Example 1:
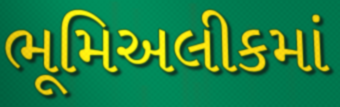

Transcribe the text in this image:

ભૂમિઅલીકમાં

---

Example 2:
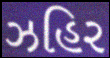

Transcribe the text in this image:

ઝહિર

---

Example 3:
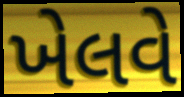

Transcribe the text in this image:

ખેલવે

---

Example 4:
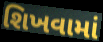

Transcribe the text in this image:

શિખવામાં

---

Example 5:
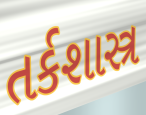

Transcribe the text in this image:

તર્કશાસ્ત્ર